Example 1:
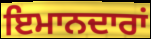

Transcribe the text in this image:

ਇਮਾਨਦਾਰਾਂ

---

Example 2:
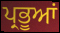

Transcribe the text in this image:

ਪ੍ਰਭੂਆਂ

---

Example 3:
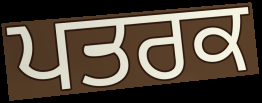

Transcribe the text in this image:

ਪਤਰਕ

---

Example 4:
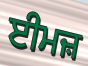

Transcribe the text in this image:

ਈਮਜ਼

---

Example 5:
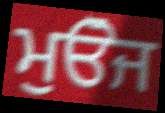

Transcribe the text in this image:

ਮੁਓੋਜ